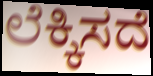
ಲೆಕ್ಕಿಸದೆ